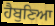
ਹੈਬੁਣਿਆ